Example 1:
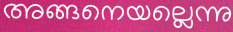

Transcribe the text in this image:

അങ്ങനെയല്ലെന്നു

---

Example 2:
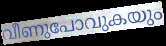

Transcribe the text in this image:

വീണുപോവുകയും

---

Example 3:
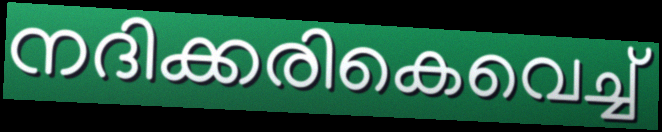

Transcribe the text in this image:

നദിക്കരികെവെച്ച്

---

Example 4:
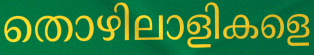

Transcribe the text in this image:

തൊഴിലാളികളെ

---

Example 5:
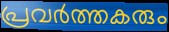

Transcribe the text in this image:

പ്രവർത്തകരും